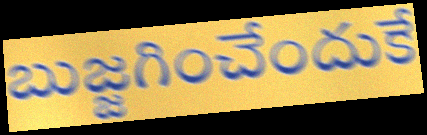
బుజ్జగించేందుకే